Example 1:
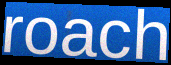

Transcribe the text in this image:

roach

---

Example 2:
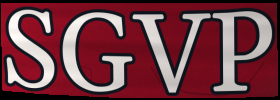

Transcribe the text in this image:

SGVP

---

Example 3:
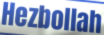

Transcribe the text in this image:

Hezbollah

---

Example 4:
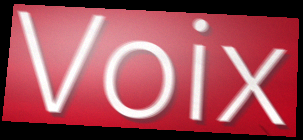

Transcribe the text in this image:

Voix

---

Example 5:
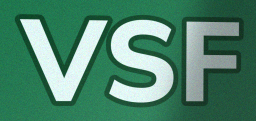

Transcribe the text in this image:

VSF